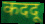
कददू